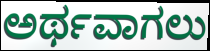
ಅರ್ಥವಾಗಲು